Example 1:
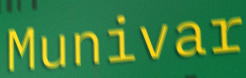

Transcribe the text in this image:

Munivar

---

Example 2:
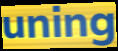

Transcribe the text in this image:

uning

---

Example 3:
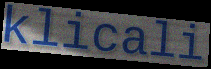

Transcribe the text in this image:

klicali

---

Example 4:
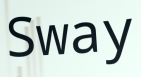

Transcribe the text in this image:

Sway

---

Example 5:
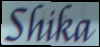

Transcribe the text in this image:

Shika